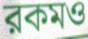
রকমও